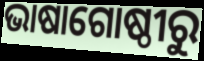
ଭାଷାଗୋଷ୍ଠୀରୁ